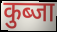
कुब्जा